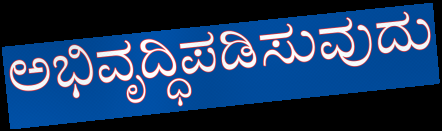
ಅಭಿವೃದ್ಧಿಪಡಿಸುವುದು